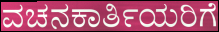
ವಚನಕಾರ್ತಿಯರಿಗೆ